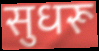
सुधरू